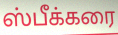
ஸ்பீக்கரை